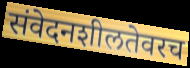
संवेदनशीलतेवरच